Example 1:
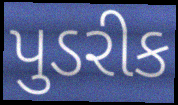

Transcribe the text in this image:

પુડરીક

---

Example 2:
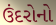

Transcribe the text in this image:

ઉંદરોનો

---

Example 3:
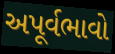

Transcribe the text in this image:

અપૂર્વભાવો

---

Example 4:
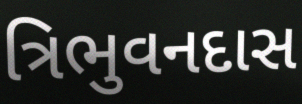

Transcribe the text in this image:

ત્રિભુવનદાસ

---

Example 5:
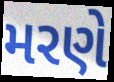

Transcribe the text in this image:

મરણે